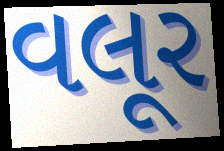
વલૂર